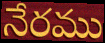
నేరము